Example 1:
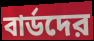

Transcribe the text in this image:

বার্ডদের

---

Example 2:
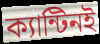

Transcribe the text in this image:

ক্যান্টিনই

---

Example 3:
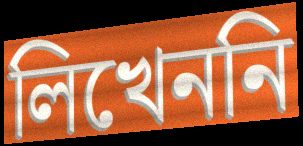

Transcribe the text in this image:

লিখেননি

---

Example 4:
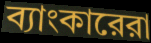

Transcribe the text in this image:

ব্যাংকারেরা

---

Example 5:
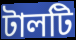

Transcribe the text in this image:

টালটি